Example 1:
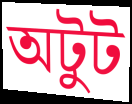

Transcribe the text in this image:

অটুট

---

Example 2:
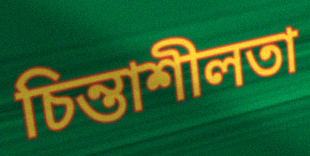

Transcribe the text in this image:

চিন্তাশীলতা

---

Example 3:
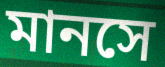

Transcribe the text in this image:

মানসে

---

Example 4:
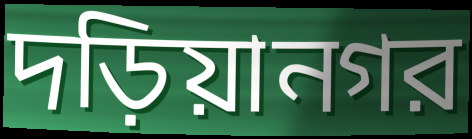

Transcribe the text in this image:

দড়িয়ানগর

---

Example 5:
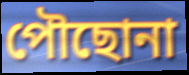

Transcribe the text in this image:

পৌছোনা